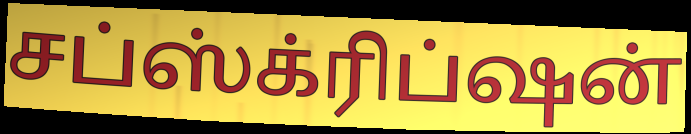
சப்ஸ்க்ரிப்ஷன்